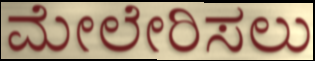
ಮೇಲೇರಿಸಲು